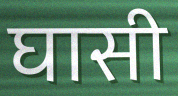
घासी